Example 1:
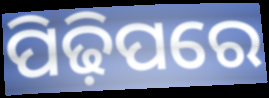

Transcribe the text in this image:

ପିଢ଼ିପରେ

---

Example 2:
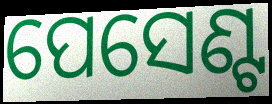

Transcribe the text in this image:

ପେସେଣ୍ଟ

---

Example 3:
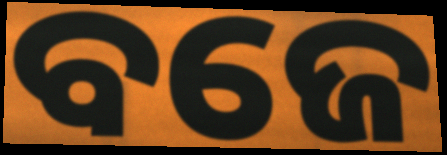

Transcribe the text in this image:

ବଜେ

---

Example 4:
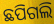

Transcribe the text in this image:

ଛପିଗଲି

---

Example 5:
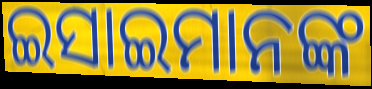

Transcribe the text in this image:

ଇସାଇମାନଙ୍କ